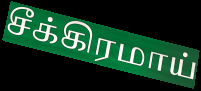
சீக்கிரமாய்